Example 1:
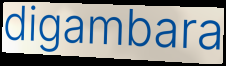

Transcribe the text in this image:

digambara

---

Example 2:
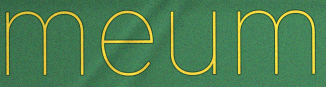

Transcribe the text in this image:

meum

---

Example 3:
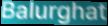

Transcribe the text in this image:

Balurghat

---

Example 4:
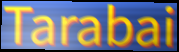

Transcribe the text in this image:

Tarabai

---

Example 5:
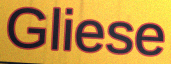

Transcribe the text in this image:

Gliese